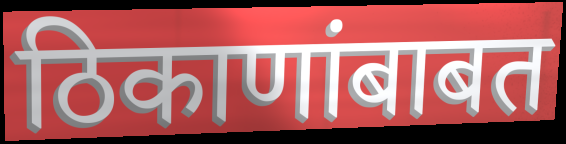
ठिकाणांबाबत